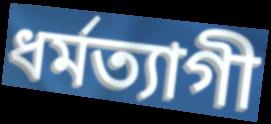
ধর্মত্যাগী